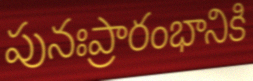
పునఃప్రారంభానికి